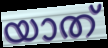
യാത്